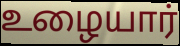
உழையார்